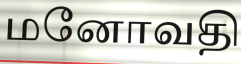
மனோவதி